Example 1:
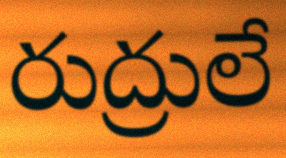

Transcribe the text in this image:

రుద్రులే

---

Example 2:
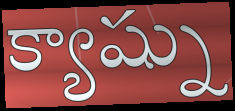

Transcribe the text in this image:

క్యాష్ను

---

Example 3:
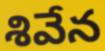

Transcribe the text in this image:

శివేన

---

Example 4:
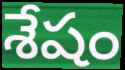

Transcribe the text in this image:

శేషం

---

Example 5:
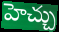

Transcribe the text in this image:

హెచ్చు